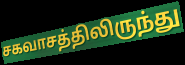
சகவாசத்திலிருந்து